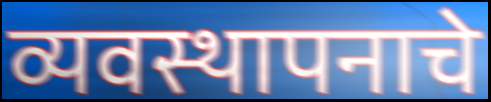
व्यवस्थापनाचे